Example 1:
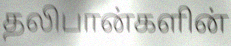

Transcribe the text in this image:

தலிபான்களின்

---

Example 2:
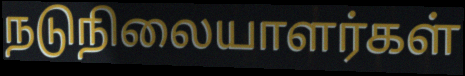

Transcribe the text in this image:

நடுநிலையாளர்கள்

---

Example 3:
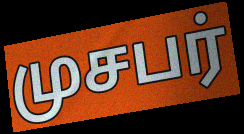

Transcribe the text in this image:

முசபர்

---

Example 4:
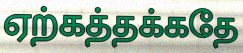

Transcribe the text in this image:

ஏற்கத்தக்கதே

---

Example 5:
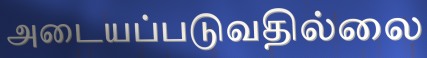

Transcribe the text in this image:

அடையப்படுவதில்லை